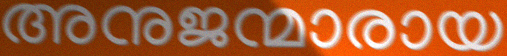
അനുജന്മാരായ